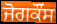
ਜੋਗਕੌਂਸ